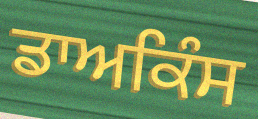
ਡਾਅਕਿੰਸ